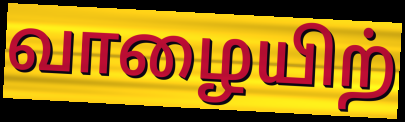
வாழையிற்